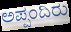
ಅಪ್ಪಂದಿರು